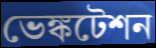
ভেঙ্কটেশন